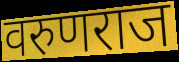
वरुणराज